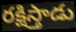
రక్షిస్తాడు